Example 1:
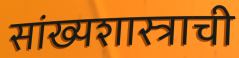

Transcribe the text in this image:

सांख्यशास्त्राची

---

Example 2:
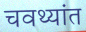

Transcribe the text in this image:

चवथ्यांत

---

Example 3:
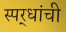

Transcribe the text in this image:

स्पर्धांची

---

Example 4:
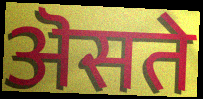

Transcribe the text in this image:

ऄसते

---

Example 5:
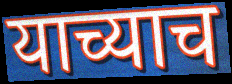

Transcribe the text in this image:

याच्याच